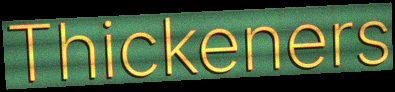
Thickeners